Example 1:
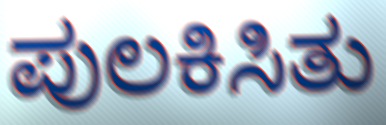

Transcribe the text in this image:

ಪುಲಕಿಸಿತು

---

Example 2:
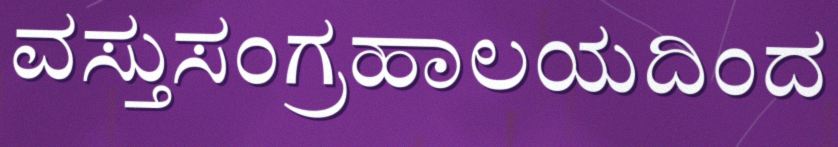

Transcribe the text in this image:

ವಸ್ತುಸಂಗ್ರಹಾಲಯದಿಂದ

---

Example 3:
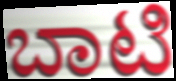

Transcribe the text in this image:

ಬಾಟಿ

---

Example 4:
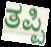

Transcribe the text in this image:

ತಪ್ಪಿ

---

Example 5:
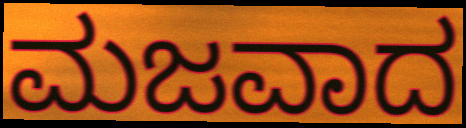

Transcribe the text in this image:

ಮಜವಾದ